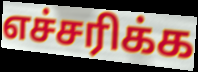
எச்சரிக்க